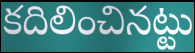
కదిలించినట్టు